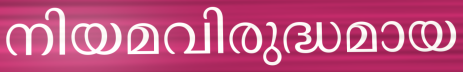
നിയമവിരുദ്ധമായ